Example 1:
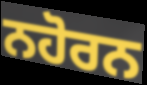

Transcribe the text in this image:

ਨਹੋਰਨ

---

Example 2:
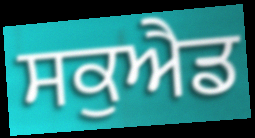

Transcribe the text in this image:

ਸਕੁਐਡ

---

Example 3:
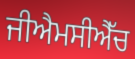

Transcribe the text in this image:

ਜੀਐਮਸੀਐੱਚ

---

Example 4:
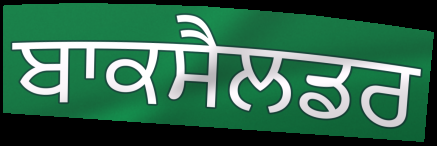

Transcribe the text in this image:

ਬਾਕਸੈਲਡਰ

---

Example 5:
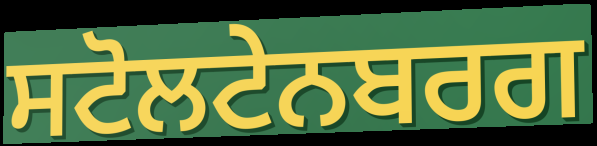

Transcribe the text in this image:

ਸਟੋਲਟੇਨਬਰਗ